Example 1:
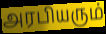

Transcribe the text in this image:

அரபியரும்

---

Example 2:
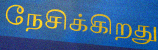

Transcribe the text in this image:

நேசிக்கிறது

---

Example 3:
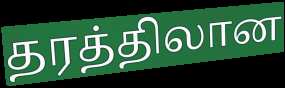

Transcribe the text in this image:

தரத்திலான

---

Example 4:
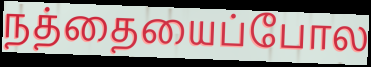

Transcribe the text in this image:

நத்தையைப்போல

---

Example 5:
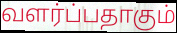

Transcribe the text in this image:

வளர்ப்பதாகும்